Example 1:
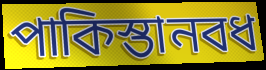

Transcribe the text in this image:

পাকিস্তানবধ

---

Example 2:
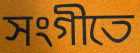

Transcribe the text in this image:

সংগীতে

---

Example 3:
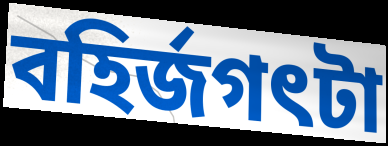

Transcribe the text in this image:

বহির্জগৎটা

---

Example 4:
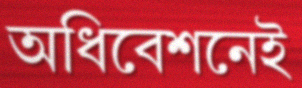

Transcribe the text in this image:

অধিবেশনেই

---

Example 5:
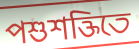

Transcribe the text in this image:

পশুশক্তিতে